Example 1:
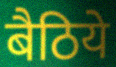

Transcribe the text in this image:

बैठिये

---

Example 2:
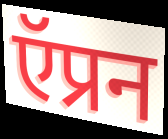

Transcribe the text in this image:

ऍप्रन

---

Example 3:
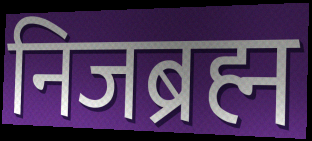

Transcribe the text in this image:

निजब्रह्म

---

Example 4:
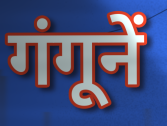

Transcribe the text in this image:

गंगूनें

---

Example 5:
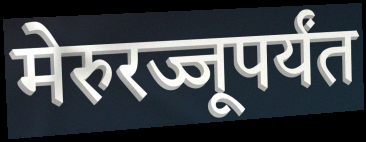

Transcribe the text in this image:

मेरुरज्जूपर्यंत